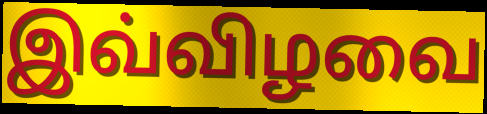
இவ்விழவை